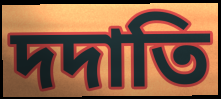
দদাতি